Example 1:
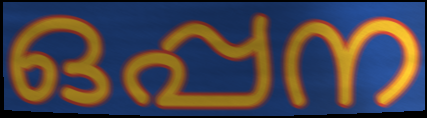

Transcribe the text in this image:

ഒപ്പന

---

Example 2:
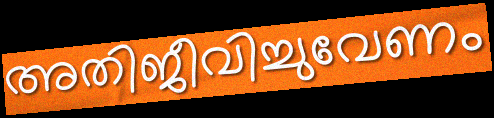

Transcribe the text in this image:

അതിജീവിച്ചുവേണം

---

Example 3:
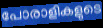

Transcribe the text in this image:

പോരാളികളുടെ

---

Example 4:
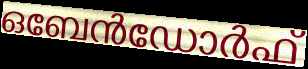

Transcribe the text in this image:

ഒബേൻഡോർഫ്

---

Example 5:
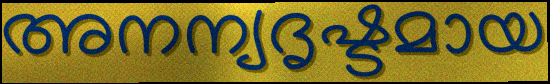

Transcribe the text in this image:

അനന്യദൃഷ്ടമായ